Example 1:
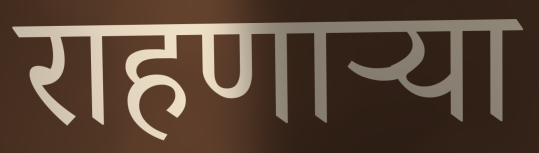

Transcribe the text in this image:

राहणाऱ्या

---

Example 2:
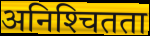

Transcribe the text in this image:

अनिश्‍चितता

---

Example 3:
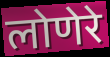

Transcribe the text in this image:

लोणेरे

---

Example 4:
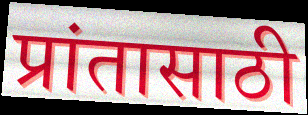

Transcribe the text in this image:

प्रांतासाठी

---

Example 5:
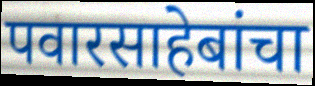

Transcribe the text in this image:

पवारसाहेबांचा